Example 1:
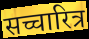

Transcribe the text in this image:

सच्चारित्र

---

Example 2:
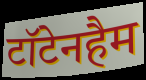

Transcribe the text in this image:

टॉटेनहैम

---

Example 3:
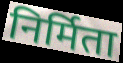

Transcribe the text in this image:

निर्मिता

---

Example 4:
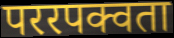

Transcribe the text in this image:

पररपक्वता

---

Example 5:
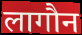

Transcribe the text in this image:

लागौन